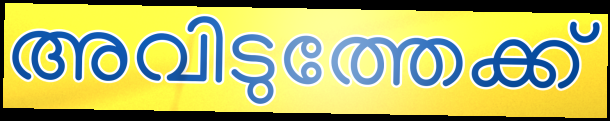
അവിടുത്തേക്ക്